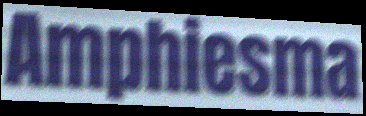
Amphiesma